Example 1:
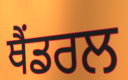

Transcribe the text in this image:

ਥੈਂਡਰਲ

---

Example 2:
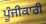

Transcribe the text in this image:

ਪੂੰਜੀਕਾਰੀ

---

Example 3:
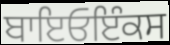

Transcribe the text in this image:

ਬਾਇਓਇੰਕਸ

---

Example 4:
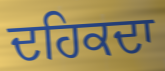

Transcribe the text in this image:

ਦਹਿਕਦਾ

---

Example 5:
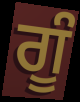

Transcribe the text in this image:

ਗੂੰ